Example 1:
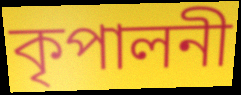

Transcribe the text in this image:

কৃপালনী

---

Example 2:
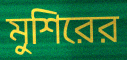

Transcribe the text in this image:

মুশিরের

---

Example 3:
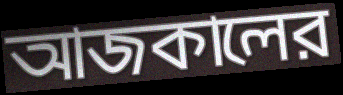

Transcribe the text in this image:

আজকালের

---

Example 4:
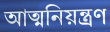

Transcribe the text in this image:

আত্মনিয়ন্ত্রণ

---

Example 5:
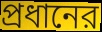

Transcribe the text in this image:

প্রধানের